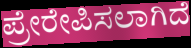
ಪ್ರೇರೇಪಿಸಲಾಗಿದೆ